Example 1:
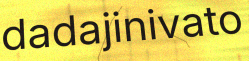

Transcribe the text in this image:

dadajinivato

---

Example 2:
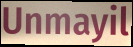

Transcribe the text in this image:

Unmayil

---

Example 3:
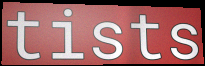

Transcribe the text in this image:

tists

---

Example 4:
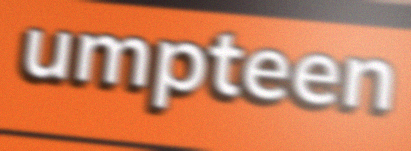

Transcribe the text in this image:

umpteen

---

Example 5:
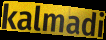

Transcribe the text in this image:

kalmadi